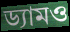
ড্যামও